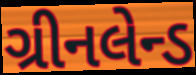
ગ્રીનલેન્ડ